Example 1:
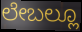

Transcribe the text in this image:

ಲೇಬಲ್ಲೂ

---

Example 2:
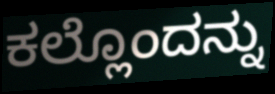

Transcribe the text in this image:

ಕಲ್ಲೊಂದನ್ನು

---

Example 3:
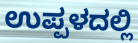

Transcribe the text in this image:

ಉಪ್ಪಳದಲ್ಲಿ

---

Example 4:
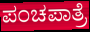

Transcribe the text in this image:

ಪಂಚಪಾತ್ರೆ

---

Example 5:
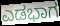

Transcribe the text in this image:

ಎಡಭಾಗ